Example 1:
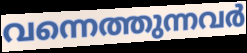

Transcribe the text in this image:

വന്നെത്തുന്നവർ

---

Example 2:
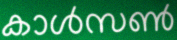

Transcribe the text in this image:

കാൾസൺ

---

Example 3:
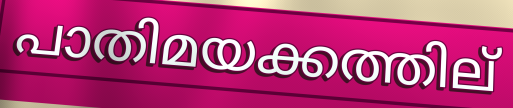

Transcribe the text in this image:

പാതിമയക്കത്തില്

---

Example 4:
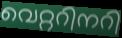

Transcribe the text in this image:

വെറ്ററിനറി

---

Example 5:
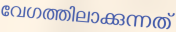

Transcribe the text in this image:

വേഗത്തിലാക്കുന്നത്